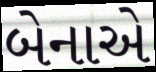
બેનાએ